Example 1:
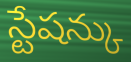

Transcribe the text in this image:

స్టేషన్కు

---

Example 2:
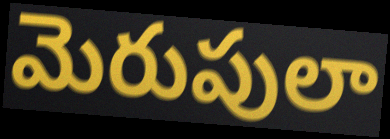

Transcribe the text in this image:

మెరుపులా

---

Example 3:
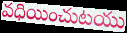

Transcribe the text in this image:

వధియించుటయు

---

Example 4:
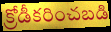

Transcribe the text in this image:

క్రోడీకరించబడి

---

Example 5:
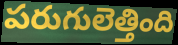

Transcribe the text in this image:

పరుగులెత్తింది